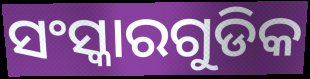
ସଂସ୍କାରଗୁଡିକ